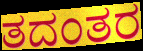
ತದಂತರ